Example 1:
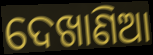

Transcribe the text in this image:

ଦେଖାଣିଆ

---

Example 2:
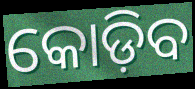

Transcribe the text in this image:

କୋଡ଼ିବ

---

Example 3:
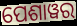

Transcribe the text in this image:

ପେଶାୱର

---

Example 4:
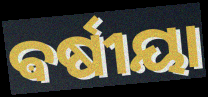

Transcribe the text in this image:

ଵର୍ଷୀୟା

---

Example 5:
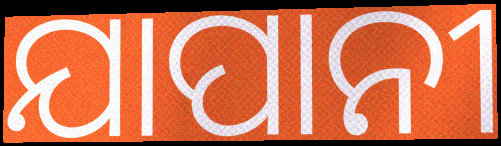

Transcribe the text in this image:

ଯାପାନୀ